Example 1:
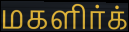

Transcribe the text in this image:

மகளிர்க்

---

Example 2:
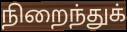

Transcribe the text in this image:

நிறைந்துக்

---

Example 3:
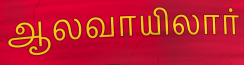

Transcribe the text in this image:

ஆலவாயிலார்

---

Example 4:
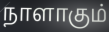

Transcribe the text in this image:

நாளாகும்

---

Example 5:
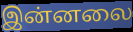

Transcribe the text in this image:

இன்னலை